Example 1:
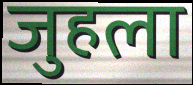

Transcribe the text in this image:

जुहला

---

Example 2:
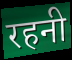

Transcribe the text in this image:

रहनी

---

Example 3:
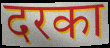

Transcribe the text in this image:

दरका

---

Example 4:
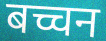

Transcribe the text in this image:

बच्चन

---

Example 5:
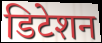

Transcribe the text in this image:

डिटेशन